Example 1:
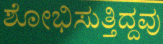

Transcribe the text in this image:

ಶೋಭಿಸುತ್ತಿದ್ದವು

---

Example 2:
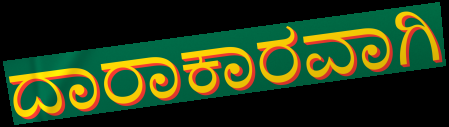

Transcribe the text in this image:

ದಾರಾಕಾರವಾಗಿ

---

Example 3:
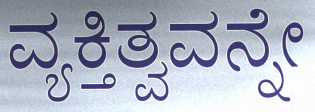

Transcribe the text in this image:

ವ್ಯಕ್ತಿತ್ವವನ್ನೇ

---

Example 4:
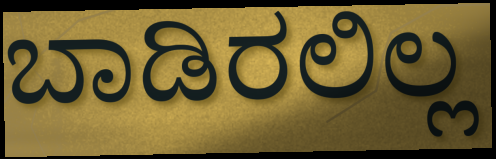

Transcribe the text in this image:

ಬಾಡಿರಲಿಲ್ಲ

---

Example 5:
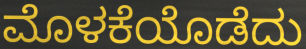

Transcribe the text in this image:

ಮೊಳಕೆಯೊಡೆದು